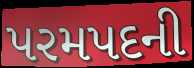
પરમપદની